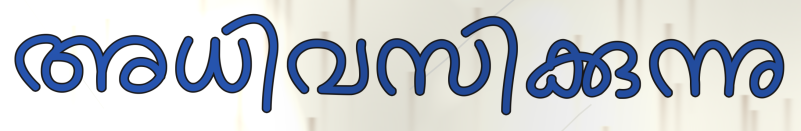
അധിവസിക്കുന്നു